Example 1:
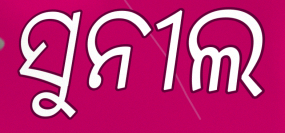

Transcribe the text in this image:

ସୁନୀଲ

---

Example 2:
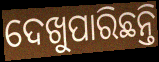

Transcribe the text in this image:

ଦେଖୁପାରିଛନ୍ତି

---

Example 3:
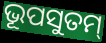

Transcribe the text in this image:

ଭୂପସୁତମ୍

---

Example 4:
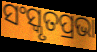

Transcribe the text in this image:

ସଂସ୍କୃତପ୍ରଭା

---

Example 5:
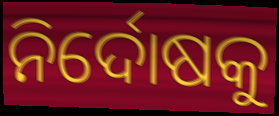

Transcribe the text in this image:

ନିର୍ଦୋଷକୁ